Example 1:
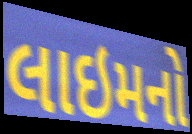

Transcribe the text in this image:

લાઇમનો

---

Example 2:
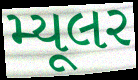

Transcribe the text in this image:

મ્યૂલર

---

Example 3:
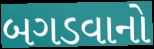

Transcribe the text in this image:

બગડવાનો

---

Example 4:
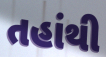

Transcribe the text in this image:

તહાંથી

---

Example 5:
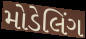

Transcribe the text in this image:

મોડેલિંગ